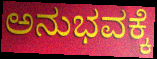
ಅನುಭವಕ್ಕೆ